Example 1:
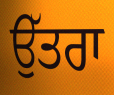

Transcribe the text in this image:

ਉੱਤਰਾ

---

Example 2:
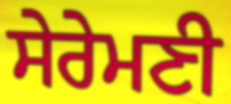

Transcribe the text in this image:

ਸੇਰੇਮਣੀ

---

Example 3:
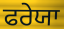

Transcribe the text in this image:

ਫਰੇਯਾ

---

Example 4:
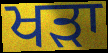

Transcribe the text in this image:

ਖਡ਼ਾ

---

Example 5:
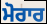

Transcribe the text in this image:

ਮੋਰਾਰ